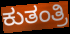
ಕುತಂತ್ರಿ